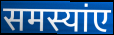
समस्यांए